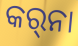
କର୍‍ନା